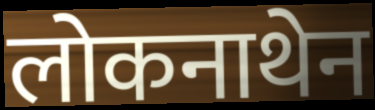
लोकनाथेन